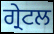
ਗ੍ਰੇਟਲ